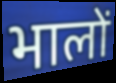
भालों